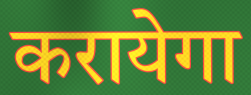
करायेगा